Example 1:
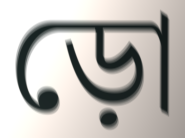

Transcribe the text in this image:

ড়ো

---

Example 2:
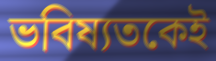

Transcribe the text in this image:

ভবিষ্যতকেই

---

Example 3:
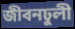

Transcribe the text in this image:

জীবনঢুলী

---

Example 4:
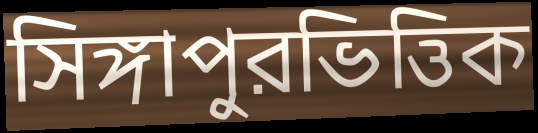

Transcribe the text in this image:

সিঙ্গাপুরভিত্তিক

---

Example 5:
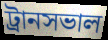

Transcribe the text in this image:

ট্রানসভাল